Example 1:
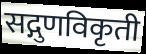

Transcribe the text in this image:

सद्गुणविकृती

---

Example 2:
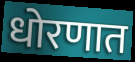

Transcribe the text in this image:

धोरणात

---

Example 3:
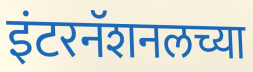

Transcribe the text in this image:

इंटरनॅशनलच्या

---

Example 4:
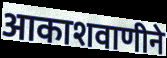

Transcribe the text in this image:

आकाशवाणीने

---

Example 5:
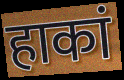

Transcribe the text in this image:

हाकां